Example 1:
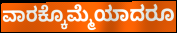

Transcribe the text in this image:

ವಾರಕ್ಕೊಮ್ಮೆಯಾದರೂ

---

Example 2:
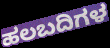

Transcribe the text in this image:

ಹಲಬದಿಗಳ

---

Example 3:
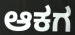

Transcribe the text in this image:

ಆಕಗ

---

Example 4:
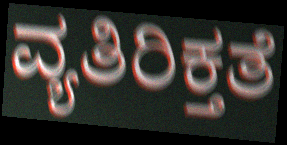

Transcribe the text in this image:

ವ್ಯತಿರಿಕ್ತತೆ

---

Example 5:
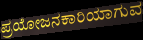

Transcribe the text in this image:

ಪ್ರಯೋಜನಕಾರಿಯಾಗುವ